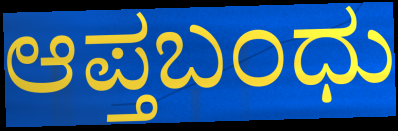
ಆಪ್ತಬಂಧು